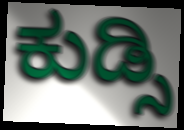
ಕುಡ್ಸಿ